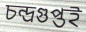
চন্দ্ৰগুপ্তই